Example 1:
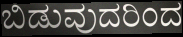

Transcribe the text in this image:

ಬಿಡುವುದರಿಂದ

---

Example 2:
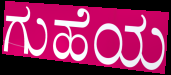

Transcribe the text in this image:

ಗುಹೆಯ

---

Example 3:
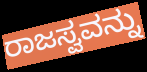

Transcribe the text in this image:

ರಾಜಸ್ವವನ್ನು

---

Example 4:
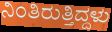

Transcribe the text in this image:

ನಿಂತಿರುತ್ತಿದ್ದಳು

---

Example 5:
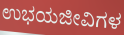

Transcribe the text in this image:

ಉಭಯಜೀವಿಗಳ